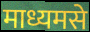
माध्यमसे